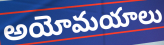
అయోమయాలు